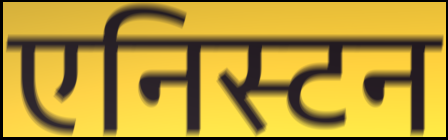
एनिस्टन